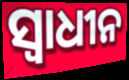
ସ୍ଵାଧୀନ